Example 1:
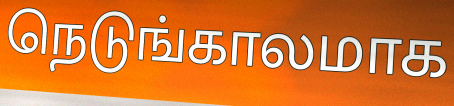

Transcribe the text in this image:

நெடுங்காலமாக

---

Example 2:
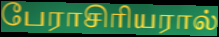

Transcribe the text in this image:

பேராசிரியரால்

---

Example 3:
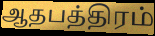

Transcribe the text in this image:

ஆதபத்திரம்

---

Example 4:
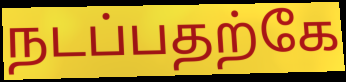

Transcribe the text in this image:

நடப்பதற்கே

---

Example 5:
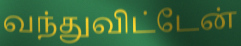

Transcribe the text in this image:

வந்துவிட்டேன்